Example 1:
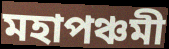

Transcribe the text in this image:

মহাপঞ্চমী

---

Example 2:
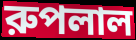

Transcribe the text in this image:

রুপলাল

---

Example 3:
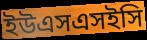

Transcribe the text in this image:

ইউএসএসইসি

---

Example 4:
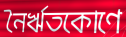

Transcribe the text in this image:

নৈর্ঋতকোণে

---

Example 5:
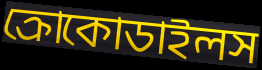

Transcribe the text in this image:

ক্রোকোডাইলস